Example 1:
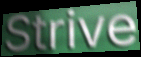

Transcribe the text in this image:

Strive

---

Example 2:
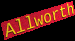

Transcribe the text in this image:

Allworth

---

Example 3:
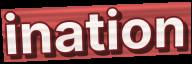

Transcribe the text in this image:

ination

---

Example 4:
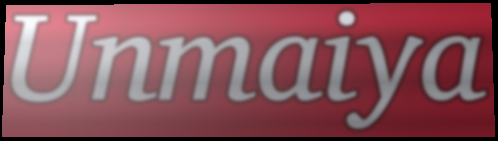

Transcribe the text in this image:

Unmaiya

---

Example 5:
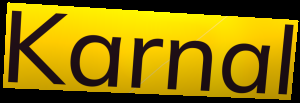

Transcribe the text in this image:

Karnal